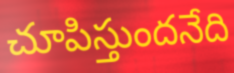
చూపిస్తుందనేది